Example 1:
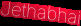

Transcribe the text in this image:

Jethabhai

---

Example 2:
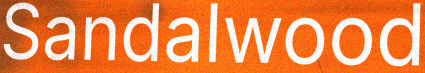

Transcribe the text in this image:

Sandalwood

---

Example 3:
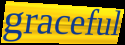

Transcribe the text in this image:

graceful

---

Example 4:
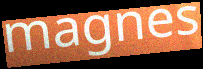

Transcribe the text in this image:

magnes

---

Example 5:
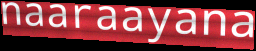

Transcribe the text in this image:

naaraayana